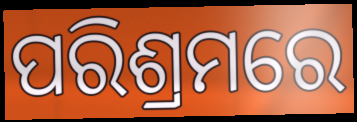
ପରିଶ୍ରମରେ